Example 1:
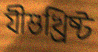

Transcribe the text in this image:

যীশুখ্রিষ্ট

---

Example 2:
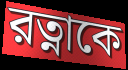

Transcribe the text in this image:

রত্নাকে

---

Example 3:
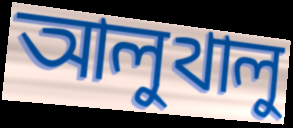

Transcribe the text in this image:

আলুথালু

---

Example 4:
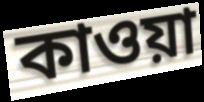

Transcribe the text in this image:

কাওয়া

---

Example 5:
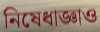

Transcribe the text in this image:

নিষেধাজ্ঞাও